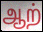
ஆற்